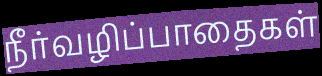
நீர்வழிப்பாதைகள்